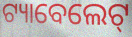
ଟ୍ୟାବେଲେଟ୍